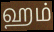
ஹம்